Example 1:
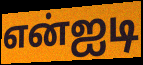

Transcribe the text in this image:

என்ஐடி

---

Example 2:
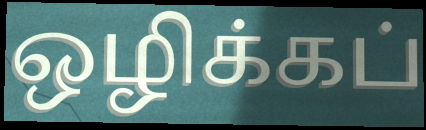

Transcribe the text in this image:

ஒழிக்கப்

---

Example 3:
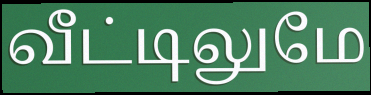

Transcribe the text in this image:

வீட்டிலுமே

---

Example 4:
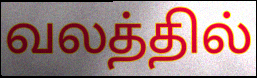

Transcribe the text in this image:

வலத்தில்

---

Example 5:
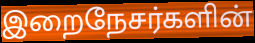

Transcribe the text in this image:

இறைநேசர்களின்